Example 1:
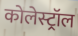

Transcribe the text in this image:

कोलेस्‍ट्रॉल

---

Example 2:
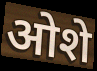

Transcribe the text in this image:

ओशे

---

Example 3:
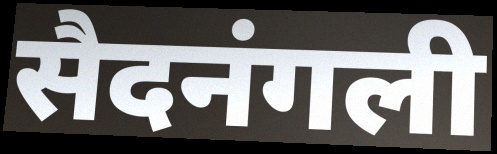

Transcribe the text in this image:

सैदनंगली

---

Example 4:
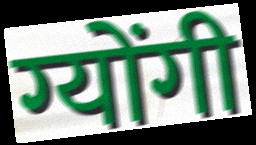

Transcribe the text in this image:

ग्योंगी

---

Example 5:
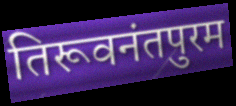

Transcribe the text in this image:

तिरूवनंतपुरम